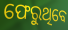
ଫେରୁଥିବେ